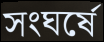
সংঘর্ষে